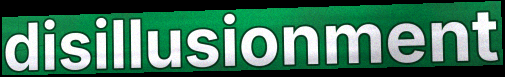
disillusionment